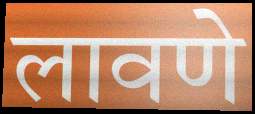
लावणे